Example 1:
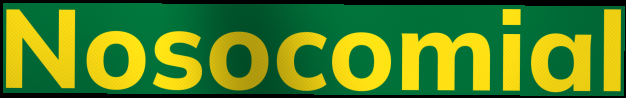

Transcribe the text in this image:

Nosocomial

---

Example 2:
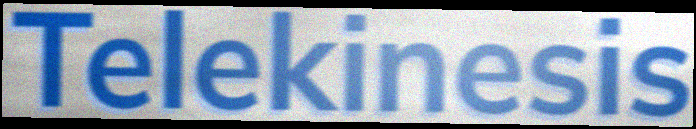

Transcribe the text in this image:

Telekinesis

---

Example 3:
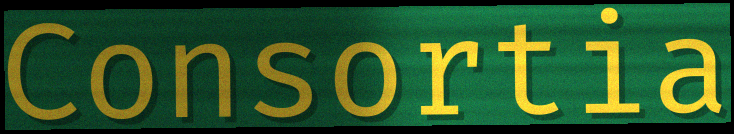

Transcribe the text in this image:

Consortia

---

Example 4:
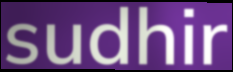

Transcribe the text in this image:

sudhir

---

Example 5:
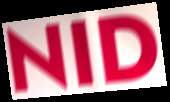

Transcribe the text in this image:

NID